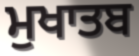
ਮੁਖਾਤਬ